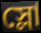
স্লো